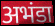
अभंडा